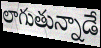
లాగుతున్నాడే